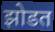
झोडत